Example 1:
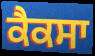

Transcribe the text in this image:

ਕੈਕਸਾ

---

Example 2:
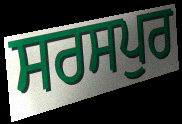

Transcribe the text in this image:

ਸਰਸਪੁਰ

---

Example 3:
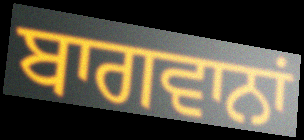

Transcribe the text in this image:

ਬਾਗਵਾਨਾਂ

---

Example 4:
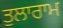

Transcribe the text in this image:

ਤੁਲਾਰਾਮ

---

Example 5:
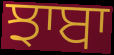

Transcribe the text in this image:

ਝਾਬਾ